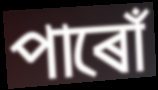
পাৰোঁ